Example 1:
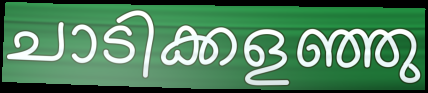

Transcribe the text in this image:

ചാടിക്കളഞ്ഞു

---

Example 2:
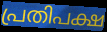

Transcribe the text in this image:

പ്രതിപക്ഷ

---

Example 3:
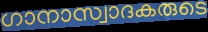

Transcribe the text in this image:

ഗാനാസ്വാദകരുടെ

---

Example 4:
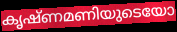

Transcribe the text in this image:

കൃഷ്ണമണിയുടെയോ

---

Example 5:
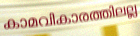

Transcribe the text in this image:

കാമവികാരത്തിലല്ല